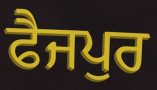
ਫੈਜਪੁਰ